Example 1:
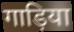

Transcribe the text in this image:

गाड़िया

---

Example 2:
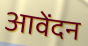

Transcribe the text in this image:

आवेंदन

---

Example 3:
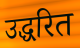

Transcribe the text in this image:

उद्धरित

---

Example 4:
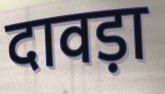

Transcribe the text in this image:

दावड़ा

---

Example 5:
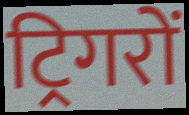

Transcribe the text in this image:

ट्रिगरों